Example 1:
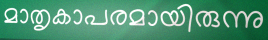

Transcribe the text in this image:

മാതൃകാപരമായിരുന്നു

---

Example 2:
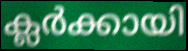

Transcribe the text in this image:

ക്ലർക്കായി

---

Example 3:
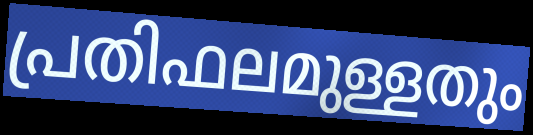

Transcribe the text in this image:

പ്രതിഫലമുള്ളതും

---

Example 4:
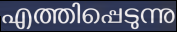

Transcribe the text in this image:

എത്തിപ്പെടുന്നു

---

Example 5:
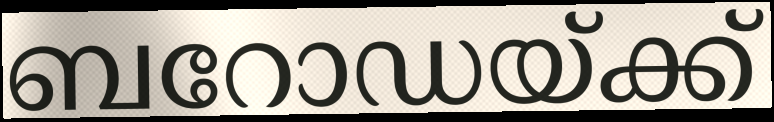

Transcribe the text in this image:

ബറോഡയ്ക്ക്